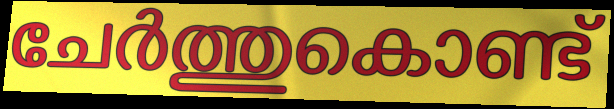
ചേർത്തുകൊണ്ട്